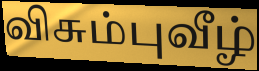
விசும்புவீழ்